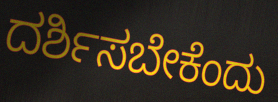
ದರ್ಶಿಸಬೇಕೆಂದು